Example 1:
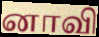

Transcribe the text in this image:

னாவி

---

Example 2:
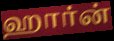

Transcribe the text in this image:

ஹார்ன்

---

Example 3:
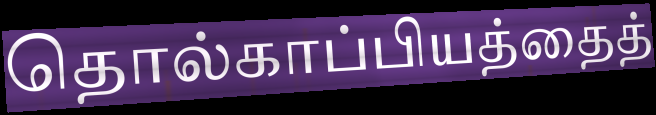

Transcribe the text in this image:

தொல்காப்பியத்தைத்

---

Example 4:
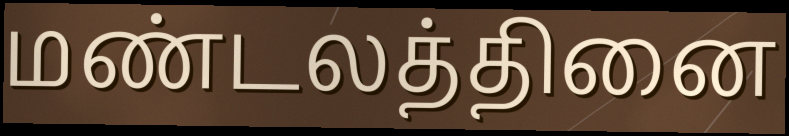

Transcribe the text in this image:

மண்டலத்தினை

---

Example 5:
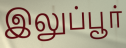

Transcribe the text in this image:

இலுப்பூர்